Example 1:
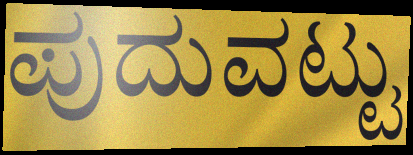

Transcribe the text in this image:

ಪುದುವಟ್ಟು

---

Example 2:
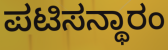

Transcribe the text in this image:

ಪಟಿಸನ್ಥಾರಂ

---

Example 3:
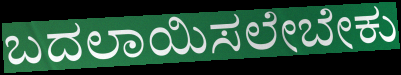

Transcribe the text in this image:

ಬದಲಾಯಿಸಲೇಬೇಕು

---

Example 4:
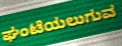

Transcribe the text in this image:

ಘಂಟೆಯಲುಗುವ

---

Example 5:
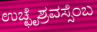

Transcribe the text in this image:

ಉಚ್ಛೈಶ್ರವಸ್ಸೆಂಬ